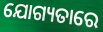
ଯୋଗ୍ୟତାରେ